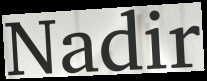
Nadir